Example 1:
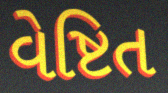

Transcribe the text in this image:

વેષ્ટિત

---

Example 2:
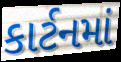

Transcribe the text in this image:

કાર્ટનમાં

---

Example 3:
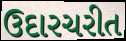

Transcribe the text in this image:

ઉદારચરીત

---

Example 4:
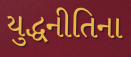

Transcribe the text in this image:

યુદ્ધનીતિના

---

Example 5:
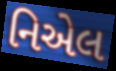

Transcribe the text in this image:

નિએલ